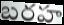
బరహ